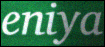
eniya